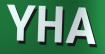
YHA